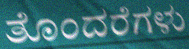
ತೊಂದರೆಗಳು